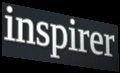
inspirer